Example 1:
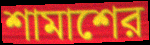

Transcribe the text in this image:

শামাশের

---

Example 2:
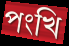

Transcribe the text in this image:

পংখি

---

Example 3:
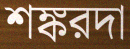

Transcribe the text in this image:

শঙ্করদা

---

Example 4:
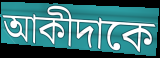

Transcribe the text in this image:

আকীদাকে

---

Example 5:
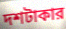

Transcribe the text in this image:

দশটাকার